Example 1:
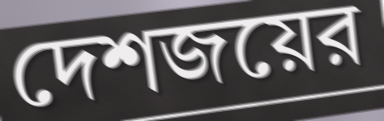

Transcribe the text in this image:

দেশজয়ের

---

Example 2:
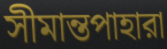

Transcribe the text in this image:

সীমান্তপাহারা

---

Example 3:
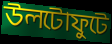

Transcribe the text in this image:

উলটোফুটে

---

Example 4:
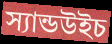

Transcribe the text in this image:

স্যান্ডউইচ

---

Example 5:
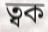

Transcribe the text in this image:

ত্বক